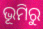
ଭୂମିରୁ